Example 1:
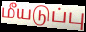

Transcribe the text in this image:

மீயடுப்பு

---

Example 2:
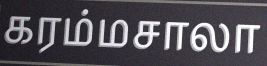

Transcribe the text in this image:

கரம்மசாலா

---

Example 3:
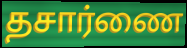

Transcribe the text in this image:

தசார்ணை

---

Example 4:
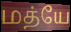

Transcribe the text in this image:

மத்யே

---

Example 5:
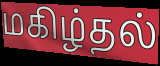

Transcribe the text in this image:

மகிழ்தல்